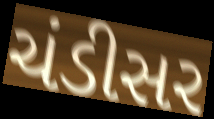
ચંડીસર